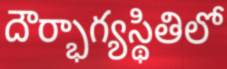
దౌర్భాగ్యస్థితిలో